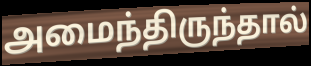
அமைந்திருந்தால்